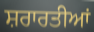
ਸ਼ਰਾਰਤੀਆਂ